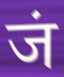
जं